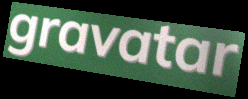
gravatar